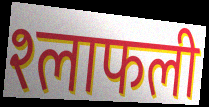
श्लाफली